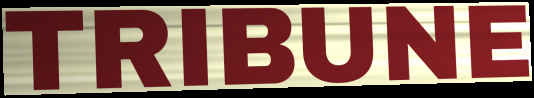
TRIBUNE